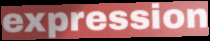
expression